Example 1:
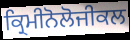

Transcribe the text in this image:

ਕ੍ਰਿਮੀਨੋਲੋਜੀਕਲ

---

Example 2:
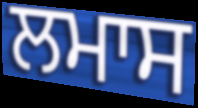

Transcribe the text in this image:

ਲਮਾਸ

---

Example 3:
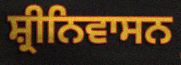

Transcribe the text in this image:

ਸ਼੍ਰੀਨਿਵਾਸਨ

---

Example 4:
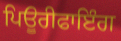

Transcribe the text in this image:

ਪਿਊਰੀਫਾਇੰਗ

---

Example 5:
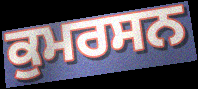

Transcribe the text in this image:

ਕੁਮਰਸਨ